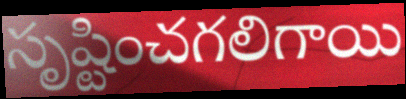
సృష్టించగలిగాయి